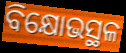
ବିକ୍ଷୋଭସ୍ଥଳ